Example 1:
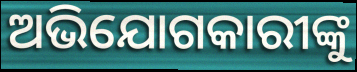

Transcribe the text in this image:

ଅଭିଯୋଗକାରୀଙ୍କୁ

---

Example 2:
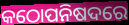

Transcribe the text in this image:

କଠୋପନିଷଦରେ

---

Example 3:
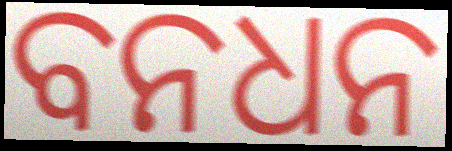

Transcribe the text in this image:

ବନଧନ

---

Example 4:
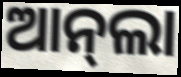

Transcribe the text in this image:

ଆନ୍‌ଲା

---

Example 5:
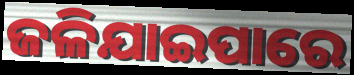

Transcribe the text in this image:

ଜଳିଯାଇପାରେ